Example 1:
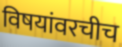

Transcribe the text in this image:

विषयांवरचीच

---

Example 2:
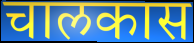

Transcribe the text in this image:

चालकास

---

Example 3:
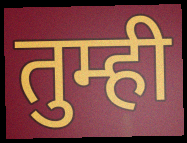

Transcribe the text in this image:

तुम्ही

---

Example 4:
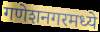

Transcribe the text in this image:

गणेशनगरमध्ये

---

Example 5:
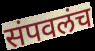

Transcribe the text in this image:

संपवलंच